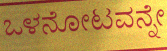
ಒಳನೋಟವನ್ನೇ